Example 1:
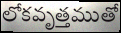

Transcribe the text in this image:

లోకవృత్తముతో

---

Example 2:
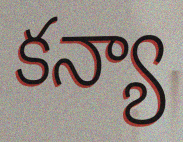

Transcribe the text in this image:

కన్యా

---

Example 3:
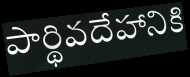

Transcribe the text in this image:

పార్థివదేహానికి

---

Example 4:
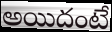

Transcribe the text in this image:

అయిదంటే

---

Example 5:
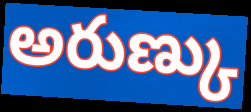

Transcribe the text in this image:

అరుణ్కు